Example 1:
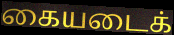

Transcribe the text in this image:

கையடைக்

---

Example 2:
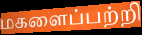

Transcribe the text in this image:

மகளைப்பற்றி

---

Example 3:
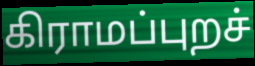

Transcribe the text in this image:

கிராமப்புறச்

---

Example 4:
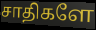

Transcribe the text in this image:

சாதிகளே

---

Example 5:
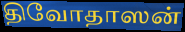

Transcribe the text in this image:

திவோதாஸன்